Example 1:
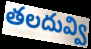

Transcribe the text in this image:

తలదువ్వి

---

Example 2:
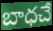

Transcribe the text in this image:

బాధచే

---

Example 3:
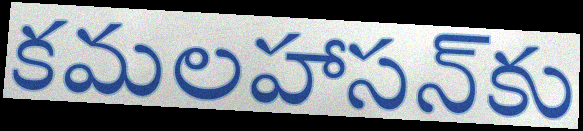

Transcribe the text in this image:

కమలహాసన్‌కు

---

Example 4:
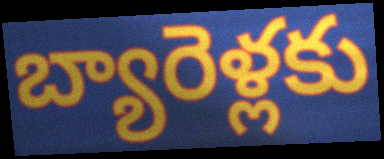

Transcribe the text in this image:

బ్యారెళ్లకు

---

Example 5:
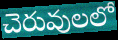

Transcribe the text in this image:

చెరువులలో